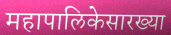
महापालिकेसारख्या